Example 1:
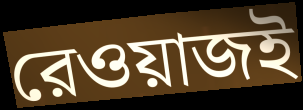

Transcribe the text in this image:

রেওয়াজই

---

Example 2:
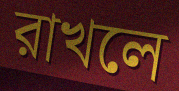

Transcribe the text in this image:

রাখলে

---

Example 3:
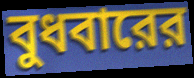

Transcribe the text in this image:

বুধবারের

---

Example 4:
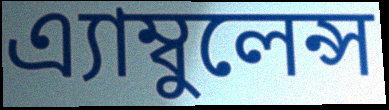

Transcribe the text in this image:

এ্যাম্বুলেন্স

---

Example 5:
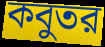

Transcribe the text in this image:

কবুতর